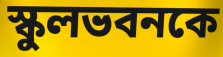
স্কুলভবনকে